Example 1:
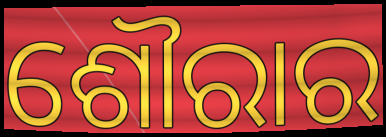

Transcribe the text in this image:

ଶୌରାର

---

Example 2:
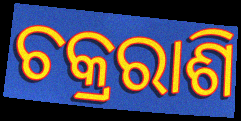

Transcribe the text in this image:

ଚକ୍ରରାଶି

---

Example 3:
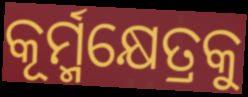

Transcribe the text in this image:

କୂର୍ମ୍ମକ୍ଷେତ୍ରକୁ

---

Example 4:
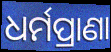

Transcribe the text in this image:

ଧର୍ମପ୍ରାଣା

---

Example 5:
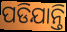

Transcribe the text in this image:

ପଡିଯାନ୍ତି